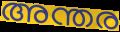
അന്തര